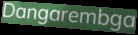
Dangarembga